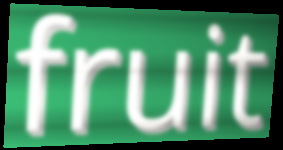
fruit